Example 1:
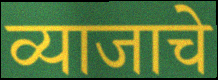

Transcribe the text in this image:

व्याजाचे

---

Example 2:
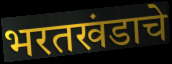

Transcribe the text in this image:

भरतखंडाचे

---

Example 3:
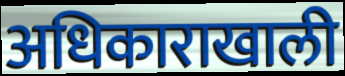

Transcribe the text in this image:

अधिकाराखाली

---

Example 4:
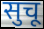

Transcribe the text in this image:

सुचू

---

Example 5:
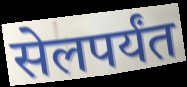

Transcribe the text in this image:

सेलपर्यंत